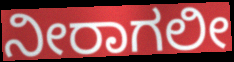
ನೀರಾಗಲೀ